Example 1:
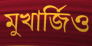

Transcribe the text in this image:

মুখার্জিও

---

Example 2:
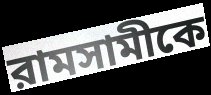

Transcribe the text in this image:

রামসামীকে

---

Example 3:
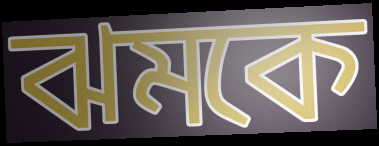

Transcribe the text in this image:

ঝমকে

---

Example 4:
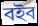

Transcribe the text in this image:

বইব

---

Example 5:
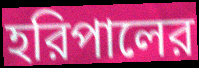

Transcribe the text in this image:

হরিপালের